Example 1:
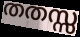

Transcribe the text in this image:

തതസ്സ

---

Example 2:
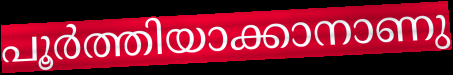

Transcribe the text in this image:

പൂർത്തിയാക്കാനാണു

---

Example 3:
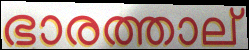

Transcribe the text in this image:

ഭാരത്താല്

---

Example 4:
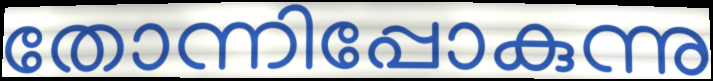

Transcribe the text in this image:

തോന്നിപ്പോകുന്നു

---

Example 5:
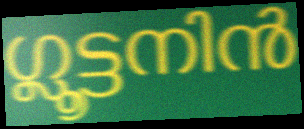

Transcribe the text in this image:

ഗ്ലൂട്ടനിൻ